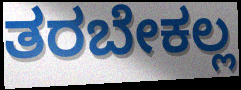
ತರಬೇಕಲ್ಲ